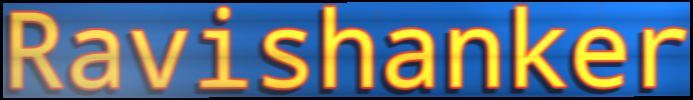
Ravishanker